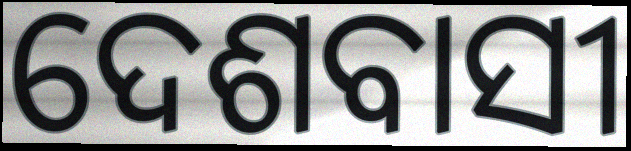
ଦେଶବାସୀ